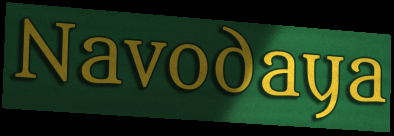
Navodaya